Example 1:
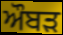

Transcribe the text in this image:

ਔਬੜ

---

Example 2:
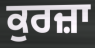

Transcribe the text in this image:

ਕੁਰਜ਼ਾ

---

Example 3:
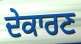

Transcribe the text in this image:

ਦੇਕਾਰਣ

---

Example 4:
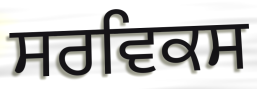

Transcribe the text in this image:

ਸਰਵਿਕਸ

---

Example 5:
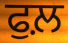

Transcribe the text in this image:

ਫੁਲ਼